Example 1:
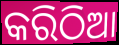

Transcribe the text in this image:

କରିଠିଆ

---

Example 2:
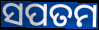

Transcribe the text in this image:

ସପତମ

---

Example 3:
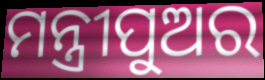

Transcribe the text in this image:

ମନ୍ତ୍ରୀପୁଅର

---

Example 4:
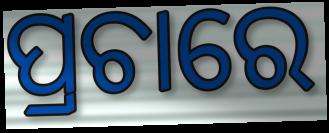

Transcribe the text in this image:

ପ୍ରଚାରେ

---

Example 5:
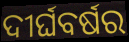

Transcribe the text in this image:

ଦୀର୍ଘବର୍ଷର